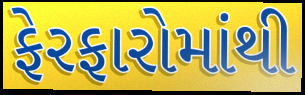
ફેરફારોમાંથી